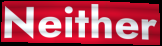
Neither